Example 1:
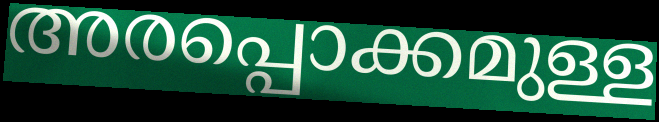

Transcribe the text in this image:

അരപ്പൊക്കമുള്ള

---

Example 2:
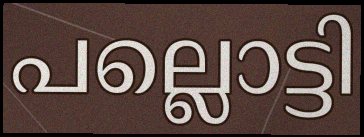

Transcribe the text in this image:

പല്ലൊട്ടി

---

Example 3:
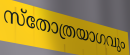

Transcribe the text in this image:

സ്തോത്രയാഗവും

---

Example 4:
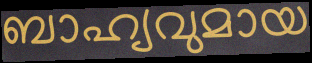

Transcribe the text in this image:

ബാഹ്യവുമായ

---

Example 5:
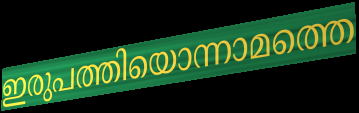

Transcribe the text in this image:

ഇരുപത്തിയൊന്നാമത്തെ